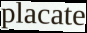
placate